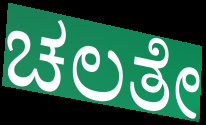
ಚಲತೇ